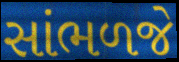
સાંભળજે